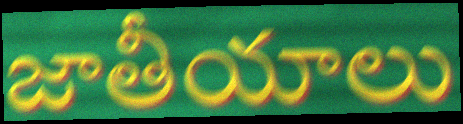
జాతీయాలు